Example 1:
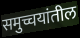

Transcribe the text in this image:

समुच्चयांतील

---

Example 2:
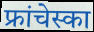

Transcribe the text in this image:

फ्रांचेस्का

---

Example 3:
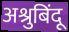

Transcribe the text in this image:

अश्रुबिंदू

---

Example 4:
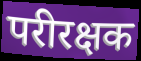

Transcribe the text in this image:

परीरक्षक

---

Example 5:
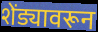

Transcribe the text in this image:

शेंड्यावरून